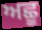
ਅਛੂ